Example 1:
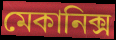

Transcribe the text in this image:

মেকানিক্স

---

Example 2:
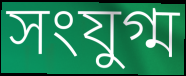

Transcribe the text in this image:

সংযুগ্ম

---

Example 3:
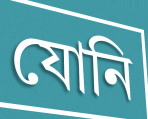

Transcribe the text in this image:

যোনি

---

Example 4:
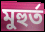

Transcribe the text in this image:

মুহুৰ্ত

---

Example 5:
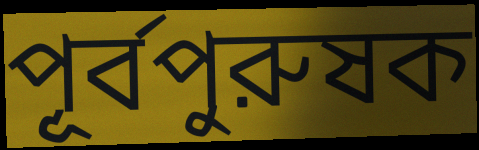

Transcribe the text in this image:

পূৰ্বপুৰুষক